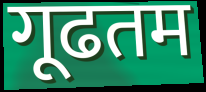
गूढतम